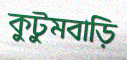
কুটুমবাড়ি